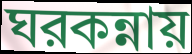
ঘরকন্নায়